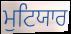
ਮੁਟਿਯਾਰ